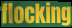
flocking